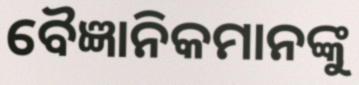
ବୈଜ୍ଞାନିକମାନଙ୍କୁ